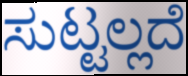
ಸುಟ್ಟಲ್ಲದೆ